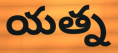
యత్న